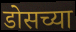
डोसच्या